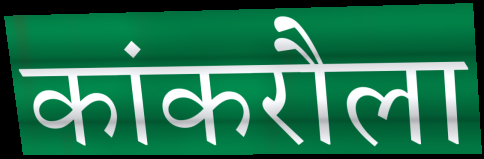
कांकरौला